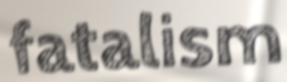
fatalism